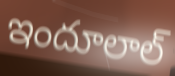
ఇందూలాల్